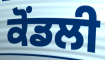
ਕੋਂਡਲੀ